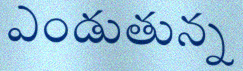
ఎండుతున్న